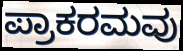
ಪ್ರಾಕರಮವು